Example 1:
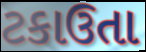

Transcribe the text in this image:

ટકાઉતા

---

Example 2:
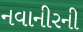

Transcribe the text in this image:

નવાનીરની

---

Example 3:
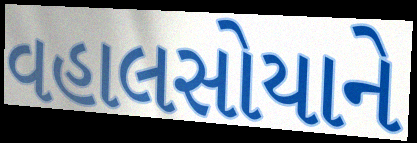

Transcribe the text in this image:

વહાલસોયાને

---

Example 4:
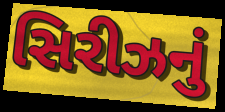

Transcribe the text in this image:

સિરીઝનું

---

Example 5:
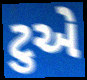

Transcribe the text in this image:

ટુએ